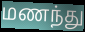
மணந்து